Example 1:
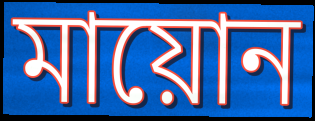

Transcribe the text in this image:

মায়োন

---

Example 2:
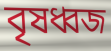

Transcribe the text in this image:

বৃষধ্বজ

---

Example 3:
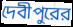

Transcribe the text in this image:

দেবীপুরের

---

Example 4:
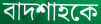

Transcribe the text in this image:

বাদশাহকে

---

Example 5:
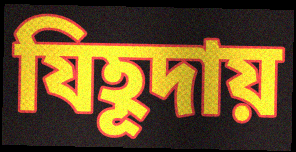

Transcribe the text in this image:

যিহূদায়